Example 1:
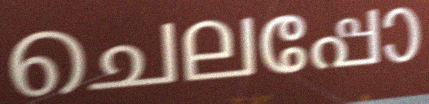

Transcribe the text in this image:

ചെലപ്പോ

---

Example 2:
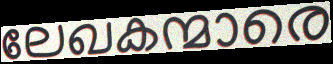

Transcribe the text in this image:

ലേഖകന്മാരെ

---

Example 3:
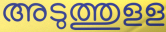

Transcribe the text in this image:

അടുത്തുളള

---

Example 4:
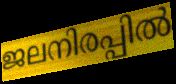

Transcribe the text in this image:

ജലനിരപ്പിൽ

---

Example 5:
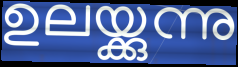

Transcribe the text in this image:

ഉലയ്ക്കുന്നു